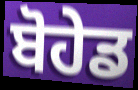
ਬੋਹੇਡ